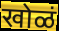
खोळं